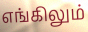
எங்கிலும்